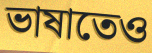
ভাষাতেও